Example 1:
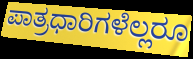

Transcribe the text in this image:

ಪಾತ್ರಧಾರಿಗಳೆಲ್ಲರೂ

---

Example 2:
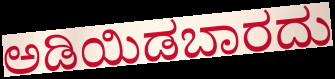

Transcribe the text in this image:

ಅಡಿಯಿಡಬಾರದು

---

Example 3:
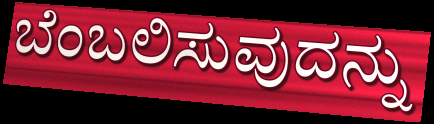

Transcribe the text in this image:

ಬೆಂಬಲಿಸುವುದನ್ನು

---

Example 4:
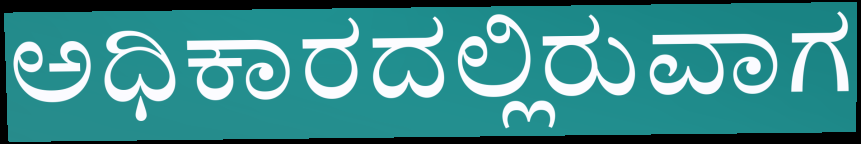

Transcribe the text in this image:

ಅಧಿಕಾರದಲ್ಲಿರುವಾಗ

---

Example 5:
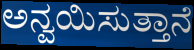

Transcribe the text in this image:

ಅನ್ವಯಿಸುತ್ತಾನೆ